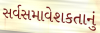
સર્વસમાવેશકતાનું